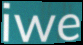
iwe